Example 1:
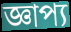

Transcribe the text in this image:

জ্ঞাপ্য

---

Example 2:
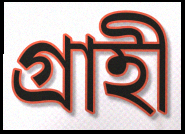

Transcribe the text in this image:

গ্রাহী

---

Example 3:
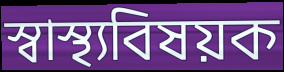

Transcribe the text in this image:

স্বাস্থ্যবিষয়ক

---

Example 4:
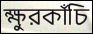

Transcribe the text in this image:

ক্ষুরকাঁচি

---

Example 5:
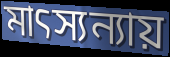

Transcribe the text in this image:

মাৎস্যন্যায়